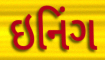
ઇનિંગ